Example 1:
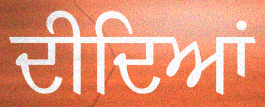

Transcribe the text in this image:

ਦੀਦਿਆਂ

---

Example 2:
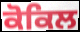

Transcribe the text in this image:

ਕੋਕਿਲ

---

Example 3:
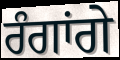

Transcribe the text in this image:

ਰੰਗਾਂਗੇ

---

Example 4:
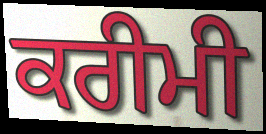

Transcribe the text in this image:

ਕਰੀਮੀ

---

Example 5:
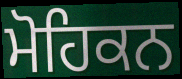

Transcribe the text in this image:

ਮੋਹਿਕਨ